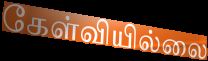
கேள்வியில்லை